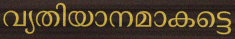
വ്യതിയാനമാകട്ടെ